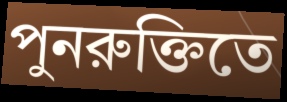
পুনরুক্তিতে